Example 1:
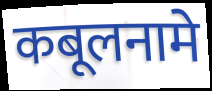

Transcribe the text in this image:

कबूलनामे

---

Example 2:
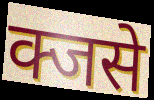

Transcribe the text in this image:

क्जसे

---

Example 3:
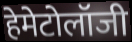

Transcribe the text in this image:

हेमेटोलॉजी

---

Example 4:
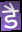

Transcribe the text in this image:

डै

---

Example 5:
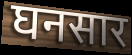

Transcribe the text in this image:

घनसार